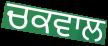
ਚਕਵਾਲ